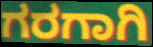
ಗರಗಾಗಿ